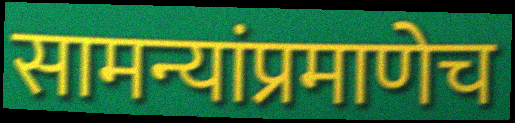
सामन्यांप्रमाणेच